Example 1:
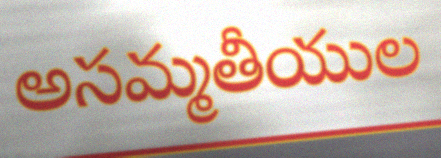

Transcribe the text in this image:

అసమ్మతీయుల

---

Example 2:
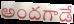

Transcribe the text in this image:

అందగాడే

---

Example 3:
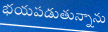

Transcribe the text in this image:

భయపడుతున్నాను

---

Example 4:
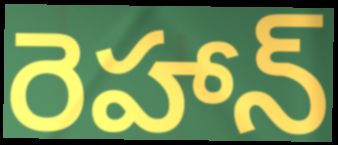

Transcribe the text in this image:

రెహాన్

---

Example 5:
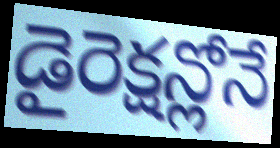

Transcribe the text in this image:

డైరెక్షన్లోనే